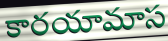
కారయామాస